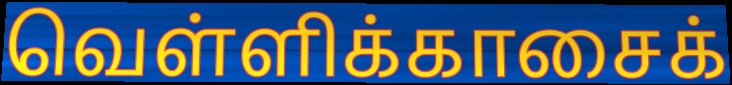
வெள்ளிக்காசைக்